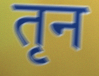
तृन